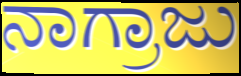
ನಾಗ್ರಾಜು